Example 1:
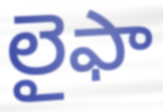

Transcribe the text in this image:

లైఫా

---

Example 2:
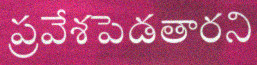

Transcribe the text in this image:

ప్రవేశపెడతారని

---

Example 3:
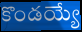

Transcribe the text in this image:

కొండయ్యే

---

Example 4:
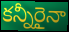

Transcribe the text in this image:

కన్నీరైనా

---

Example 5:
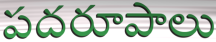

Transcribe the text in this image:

పదరూపాలు